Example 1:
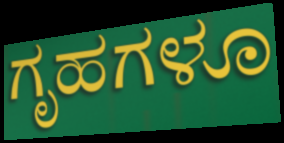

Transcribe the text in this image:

ಗೃಹಗಳೂ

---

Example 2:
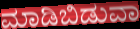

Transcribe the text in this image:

ಮಾಡಿಬಿಡುವಾ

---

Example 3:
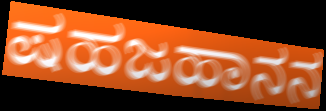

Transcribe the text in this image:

ಷಹಜಹಾನನ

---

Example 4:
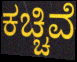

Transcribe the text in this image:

ಕಚ್ಚಿವೆ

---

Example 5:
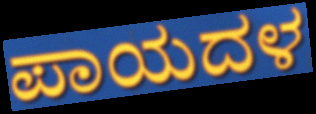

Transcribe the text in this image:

ಪಾಯದಳ